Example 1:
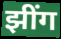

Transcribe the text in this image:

झींग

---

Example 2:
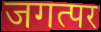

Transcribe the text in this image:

जगत्पर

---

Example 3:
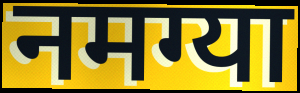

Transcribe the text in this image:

नमग्या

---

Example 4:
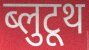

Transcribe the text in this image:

ब्लुटूथ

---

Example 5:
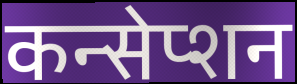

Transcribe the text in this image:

कन्सेप्शन